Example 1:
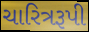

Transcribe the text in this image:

ચારિત્રરૂપી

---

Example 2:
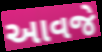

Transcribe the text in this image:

આવજે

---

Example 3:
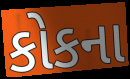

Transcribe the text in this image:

કોકના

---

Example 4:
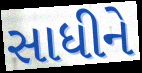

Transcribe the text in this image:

સાધીને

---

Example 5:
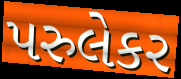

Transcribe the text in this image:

પરુલેકર